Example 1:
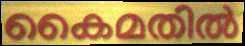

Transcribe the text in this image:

കൈമതിൽ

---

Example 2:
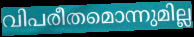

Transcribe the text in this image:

വിപരീതമൊന്നുമില്ല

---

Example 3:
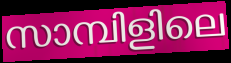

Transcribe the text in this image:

സാമ്പിളിലെ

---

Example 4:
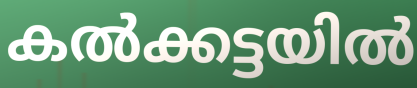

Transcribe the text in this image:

കൽക്കട്ടയിൽ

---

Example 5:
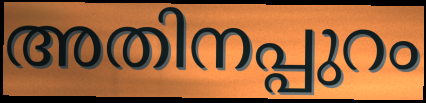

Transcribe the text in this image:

അതിനപ്പുറം